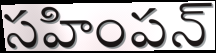
సహింపన్